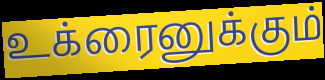
உக்ரைனுக்கும்